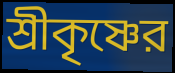
শ্রীকৃষ্ণের